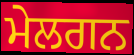
ਮੇਲਗਨ